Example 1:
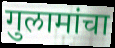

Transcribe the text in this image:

गुलामांचा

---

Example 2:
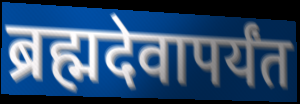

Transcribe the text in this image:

ब्रह्मदेवापर्यंत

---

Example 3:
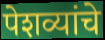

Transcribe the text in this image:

पेशव्यांचे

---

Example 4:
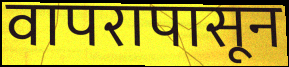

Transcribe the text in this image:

वापरापासून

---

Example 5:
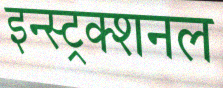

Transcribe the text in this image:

इन्स्ट्रक्शनल